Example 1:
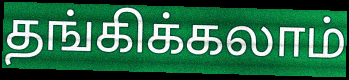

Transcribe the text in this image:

தங்கிக்கலாம்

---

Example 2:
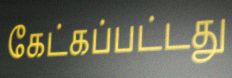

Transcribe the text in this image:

கேட்கப்பட்டது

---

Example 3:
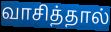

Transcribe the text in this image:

வாசித்தால்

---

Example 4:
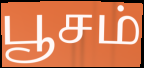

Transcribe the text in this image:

பூசம்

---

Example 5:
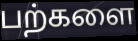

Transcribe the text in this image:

பற்களை